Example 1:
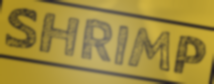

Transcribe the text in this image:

SHRIMP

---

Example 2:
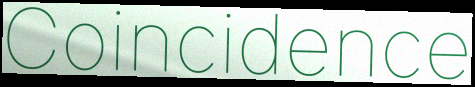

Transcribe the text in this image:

Coincidence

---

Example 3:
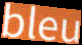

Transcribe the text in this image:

bleu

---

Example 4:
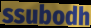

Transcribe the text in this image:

ssubodh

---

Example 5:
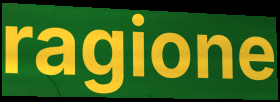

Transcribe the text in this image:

ragione